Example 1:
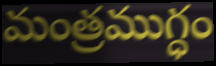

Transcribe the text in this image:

మంత్రముగ్ధం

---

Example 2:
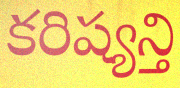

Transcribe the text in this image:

కరిష్యన్తి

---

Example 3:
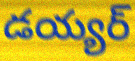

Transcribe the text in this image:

డయ్యర్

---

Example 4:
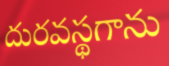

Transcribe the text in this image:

దురవస్థగాను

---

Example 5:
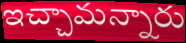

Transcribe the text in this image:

ఇచ్చామన్నారు